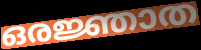
ഒരജ്ഞാത